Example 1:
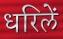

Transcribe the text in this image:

धरिलें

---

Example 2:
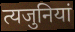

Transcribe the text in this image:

त्यजुनियां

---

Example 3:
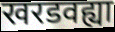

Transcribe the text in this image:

खरडवह्या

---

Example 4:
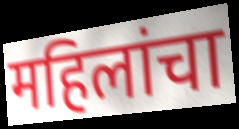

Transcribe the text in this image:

महिलांचा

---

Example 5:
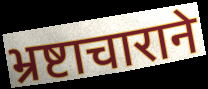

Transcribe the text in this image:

भ्रष्टाचाराने